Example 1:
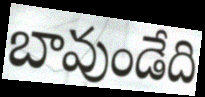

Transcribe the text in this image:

బావుండేది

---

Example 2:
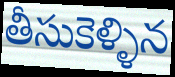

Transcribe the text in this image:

తీసుకెళ్ళిన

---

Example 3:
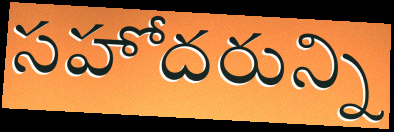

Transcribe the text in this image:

సహోదరున్ని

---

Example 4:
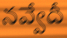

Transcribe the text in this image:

నవ్వేదీ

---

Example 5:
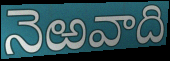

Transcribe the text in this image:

నెఱవాది